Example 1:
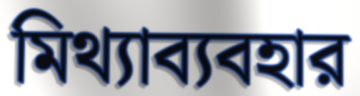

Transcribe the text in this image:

মিথ্যাব্যবহার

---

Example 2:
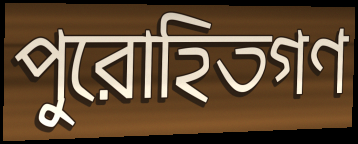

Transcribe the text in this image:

পুরোহিতগণ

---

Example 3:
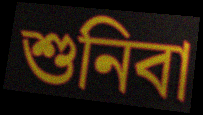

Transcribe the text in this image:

শুনিবা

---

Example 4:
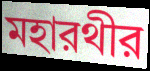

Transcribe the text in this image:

মহারথীর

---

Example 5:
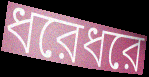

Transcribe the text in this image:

ধরেধরে